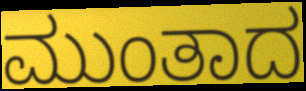
ಮುಂತಾದ